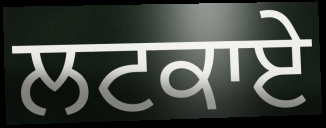
ਲਟਕਾਏ